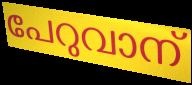
പേറുവാന്